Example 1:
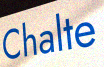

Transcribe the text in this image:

Chalte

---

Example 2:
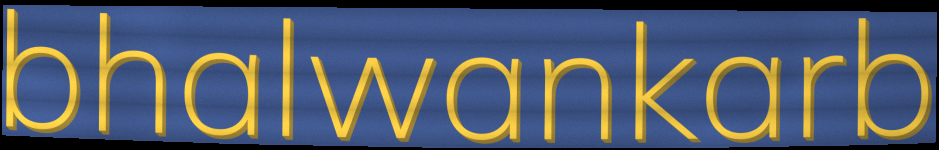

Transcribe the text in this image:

bhalwankarb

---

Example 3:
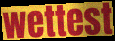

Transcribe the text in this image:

wettest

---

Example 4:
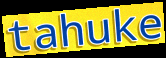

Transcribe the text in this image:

tahuke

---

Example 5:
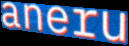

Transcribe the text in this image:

aneru